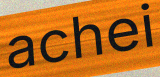
achei